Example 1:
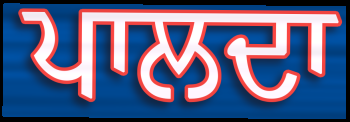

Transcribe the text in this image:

ਪਾਲਦਾ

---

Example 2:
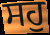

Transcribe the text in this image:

ਸਹੁ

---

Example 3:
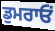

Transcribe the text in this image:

ਡੁਮਰਾਓਂ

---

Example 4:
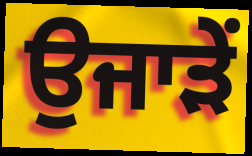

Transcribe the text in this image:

ਉਜਾੜੇਂ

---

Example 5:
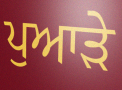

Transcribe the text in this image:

ਪੁਆੜੇ